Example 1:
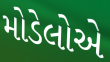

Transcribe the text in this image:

મોડેલોએ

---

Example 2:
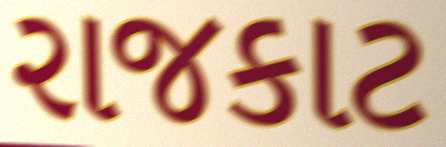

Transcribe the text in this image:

રાજકાટ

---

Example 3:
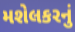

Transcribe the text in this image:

મશેલકરનું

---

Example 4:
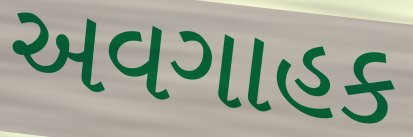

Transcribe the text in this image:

અવગાહક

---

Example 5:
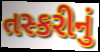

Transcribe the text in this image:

તસ્કરીનું